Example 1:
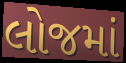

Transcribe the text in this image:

લોજમાં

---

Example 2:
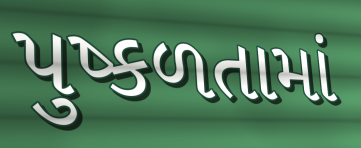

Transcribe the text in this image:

પુષ્કળતામાં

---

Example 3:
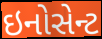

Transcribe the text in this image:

ઇનોસેન્ટ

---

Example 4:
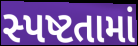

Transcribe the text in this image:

સ્પષ્ટતામાં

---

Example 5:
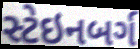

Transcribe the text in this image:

સ્ટેઇનબર્ગ